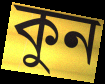
কুন